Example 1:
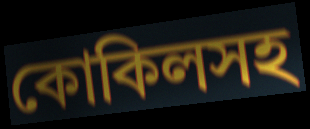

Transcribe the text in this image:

কোকিলসহ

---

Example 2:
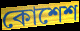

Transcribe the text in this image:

কোশেশ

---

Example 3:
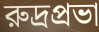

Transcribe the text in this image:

রুদ্রপ্রভা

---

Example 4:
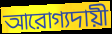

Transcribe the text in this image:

আরোগ্যদায়ী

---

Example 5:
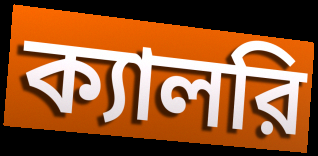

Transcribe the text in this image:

ক্যালরি